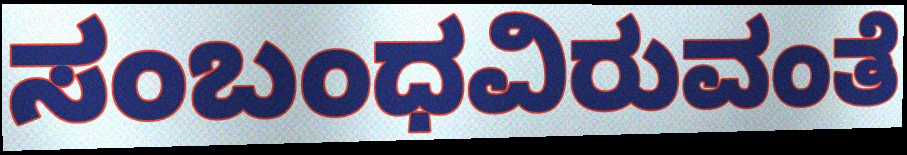
ಸಂಬಂಧವಿರುವಂತೆ